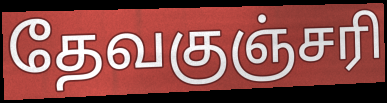
தேவகுஞ்சரி